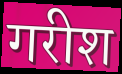
गरीश